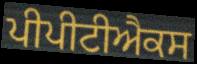
ਪੀਪੀਟੀਐਕਸ